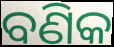
ବଣିକ